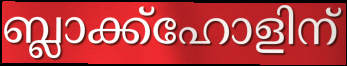
ബ്ലാക്ക്ഹോളിന്